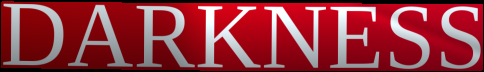
DARKNESS